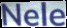
Nele